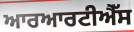
ਆਰਆਰਟੀਐੱਸ